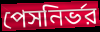
পেসনির্ভর